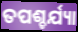
ତପଶ୍ଚର୍ଯ୍ୟା